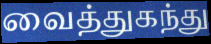
வைத்துகந்து